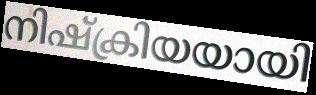
നിഷ്ക്രിയയായി